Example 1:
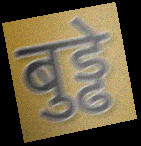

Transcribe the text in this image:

बुड्ढे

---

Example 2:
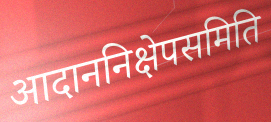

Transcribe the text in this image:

आदाननिक्षेपसमिति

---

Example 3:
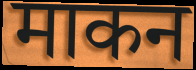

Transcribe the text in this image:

माकन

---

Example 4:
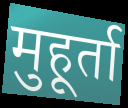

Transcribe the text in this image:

मुहूर्ता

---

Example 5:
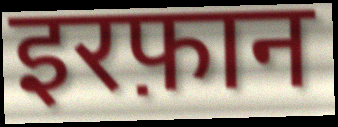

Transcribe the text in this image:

इरफ़ान